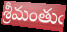
శ్రీమంతుఁ